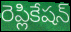
రెప్లికేషన్